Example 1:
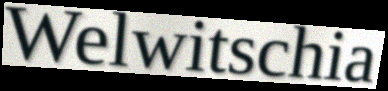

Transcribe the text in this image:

Welwitschia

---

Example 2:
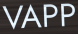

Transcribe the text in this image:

VAPP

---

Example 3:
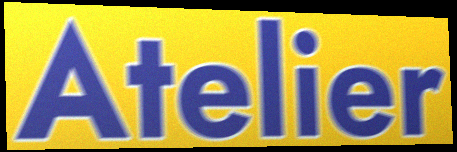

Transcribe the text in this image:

Atelier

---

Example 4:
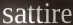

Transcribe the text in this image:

sattire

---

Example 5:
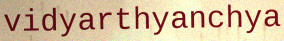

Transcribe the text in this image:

vidyarthyanchya